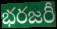
భరజరీ